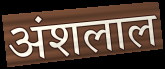
अंशलाल